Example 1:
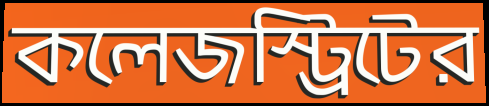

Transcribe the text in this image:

কলেজস্ট্রিটের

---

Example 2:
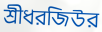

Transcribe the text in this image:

শ্রীধরজিউর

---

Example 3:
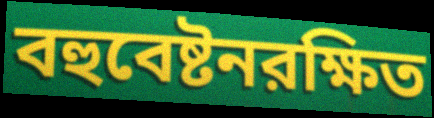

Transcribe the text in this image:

বহুবেষ্টনরক্ষিত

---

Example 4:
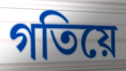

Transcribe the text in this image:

গতিয়ে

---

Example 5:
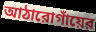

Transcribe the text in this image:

আঠারোগাঁয়ের